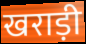
खराड़ी